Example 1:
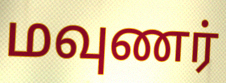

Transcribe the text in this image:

மவுணர்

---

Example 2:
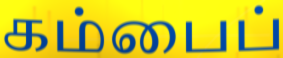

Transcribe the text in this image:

கம்பைப்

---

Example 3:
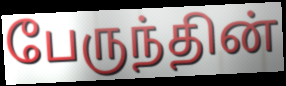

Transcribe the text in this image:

பேருந்தின்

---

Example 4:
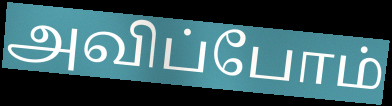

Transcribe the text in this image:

அவிப்போம்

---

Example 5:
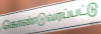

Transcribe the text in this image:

கொண்டுவரப்பட்டு